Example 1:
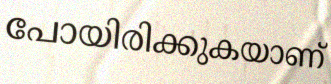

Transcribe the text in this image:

പോയിരിക്കുകയാണ്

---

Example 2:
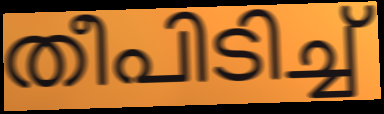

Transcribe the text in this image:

തീപിടിച്ച്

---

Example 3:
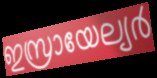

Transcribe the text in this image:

ഇസ്രായേല്യർ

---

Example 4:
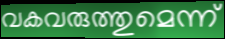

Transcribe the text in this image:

വകവരുത്തുമെന്ന്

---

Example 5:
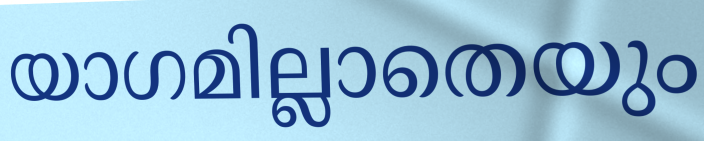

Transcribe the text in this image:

യാഗമില്ലാതെയും